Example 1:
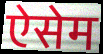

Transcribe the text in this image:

ऐसेम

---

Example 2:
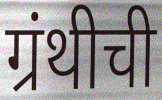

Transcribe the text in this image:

ग्रंथीची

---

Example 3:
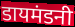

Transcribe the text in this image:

डायमंडनी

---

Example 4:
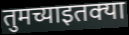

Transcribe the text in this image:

तुमच्याइतक्या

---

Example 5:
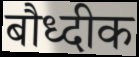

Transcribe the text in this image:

बौध्दीक